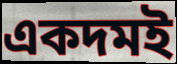
একদমই